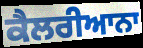
ਕੈਲਰੀਆਨਾ